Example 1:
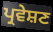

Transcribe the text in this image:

ਪ੍ਰਵੇਸ਼ਣ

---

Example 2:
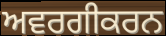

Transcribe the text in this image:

ਅਵਰਗੀਕਰਨ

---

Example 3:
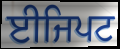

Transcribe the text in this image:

ਈਜਿਪਟ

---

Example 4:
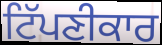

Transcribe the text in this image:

ਟਿੱਪਣੀਕਾਰ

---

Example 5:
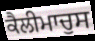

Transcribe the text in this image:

ਕੈਲੀਮਾਚੁਸ